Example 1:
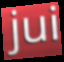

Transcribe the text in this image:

jui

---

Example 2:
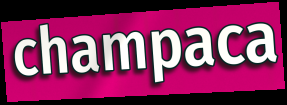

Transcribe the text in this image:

champaca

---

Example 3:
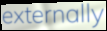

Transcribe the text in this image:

externally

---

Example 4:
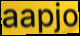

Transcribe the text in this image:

aapjo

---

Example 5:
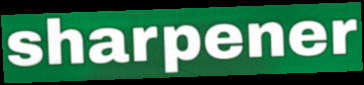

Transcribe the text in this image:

sharpener